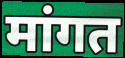
मांगत